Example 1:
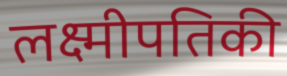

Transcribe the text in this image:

लक्ष्मीपतिकी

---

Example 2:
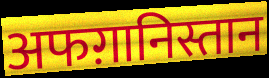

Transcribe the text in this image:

अफग़ानिस्तान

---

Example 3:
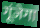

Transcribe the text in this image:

गूंजेगा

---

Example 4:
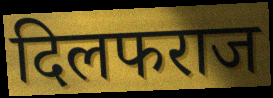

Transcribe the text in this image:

दिलफराज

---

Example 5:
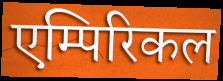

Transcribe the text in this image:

एम्पिरिकल